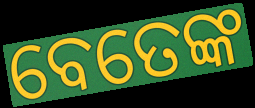
ବେତେଙ୍କ